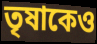
তৃষাকেও